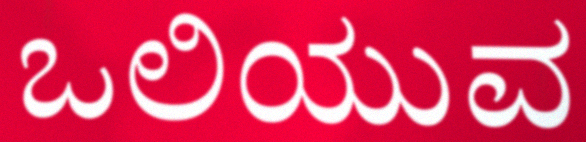
ಒಲಿಯುವ